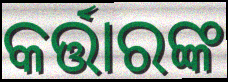
କର୍ତ୍ତାରଙ୍କ